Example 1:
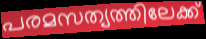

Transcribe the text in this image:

പരമസത്യത്തിലേക്ക്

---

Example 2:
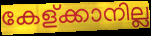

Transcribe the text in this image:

കേള്ക്കാനില്ല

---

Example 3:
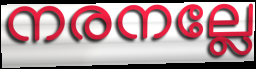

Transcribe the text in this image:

നരനല്ലേ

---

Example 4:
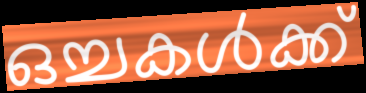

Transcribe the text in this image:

ഒച്ചകൾക്ക്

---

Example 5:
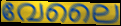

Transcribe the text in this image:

വേലൈ